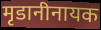
मृडानीनायक